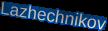
Lazhechnikov